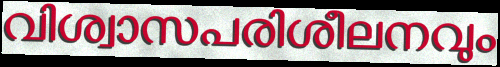
വിശ്വാസപരിശീലനവും